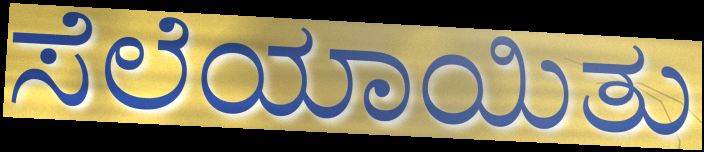
ಸೆಲೆಯಾಯಿತು